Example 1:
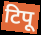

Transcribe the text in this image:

टिपू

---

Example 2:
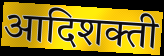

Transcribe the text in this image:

आदिशक्ती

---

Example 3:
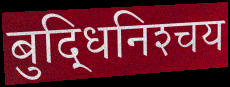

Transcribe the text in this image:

बुद्धिनिश्चय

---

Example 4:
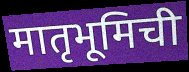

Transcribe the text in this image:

मातृभूमिची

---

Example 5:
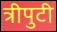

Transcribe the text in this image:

त्रीपुटी